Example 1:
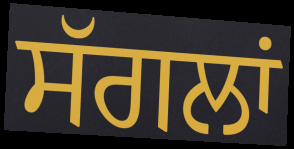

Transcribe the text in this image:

ਸੱਗਲਾਂ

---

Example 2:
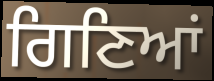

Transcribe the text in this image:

ਗਿਣਿਆਂ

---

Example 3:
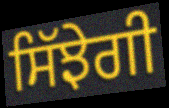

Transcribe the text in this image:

ਸਿੱਝੇਗੀ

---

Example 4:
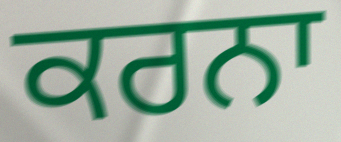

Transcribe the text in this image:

ਕਰਨਾ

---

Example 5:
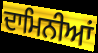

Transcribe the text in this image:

ਦਾਮਿਨੀਆਂ